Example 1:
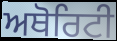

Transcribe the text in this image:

ਅਥੋਰਿਟੀ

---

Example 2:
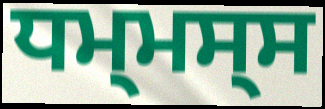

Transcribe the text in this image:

ਧਮ੍ਮਸ੍ਸ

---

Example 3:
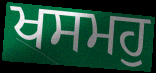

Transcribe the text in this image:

ਖਸਮਹੁ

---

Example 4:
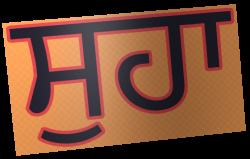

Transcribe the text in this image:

ਸੁਹਾ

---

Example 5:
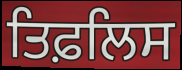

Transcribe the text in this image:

ਤਿਫ਼ਲਿਸ